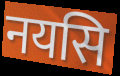
नयसि